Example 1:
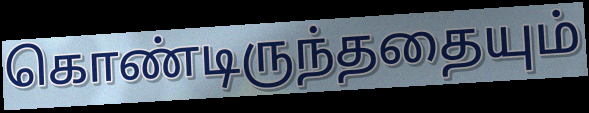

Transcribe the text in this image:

கொண்டிருந்ததையும்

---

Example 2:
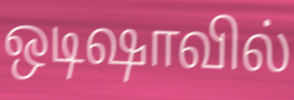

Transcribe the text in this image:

ஒடிஷாவில்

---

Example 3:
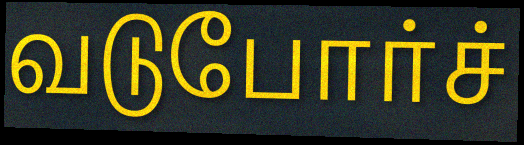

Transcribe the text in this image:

வடுபோர்ச்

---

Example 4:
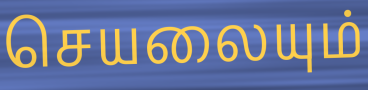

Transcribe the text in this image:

செயலையும்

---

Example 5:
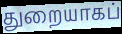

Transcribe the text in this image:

துறையாகப்